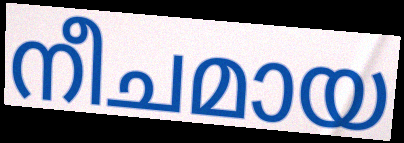
നീചമായ